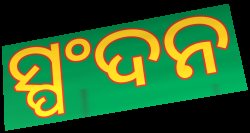
ସ୍ପଂଦନ